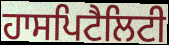
ਹਾਸਪਿਟੈਲਿਟੀ